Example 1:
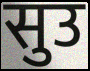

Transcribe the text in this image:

सुउ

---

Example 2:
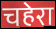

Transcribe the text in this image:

चहेरा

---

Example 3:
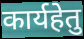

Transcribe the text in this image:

कार्यहेतु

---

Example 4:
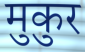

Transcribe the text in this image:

मुकुर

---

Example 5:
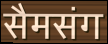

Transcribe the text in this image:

सैमसंग